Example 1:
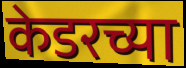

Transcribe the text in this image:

केडरच्या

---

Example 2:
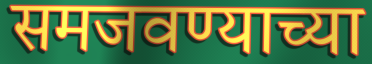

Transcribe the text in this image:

समजवण्याच्या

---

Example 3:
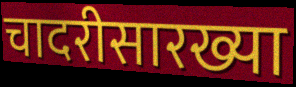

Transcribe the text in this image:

चादरीसारख्या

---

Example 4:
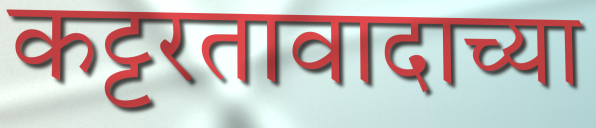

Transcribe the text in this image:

कट्टरतावादाच्या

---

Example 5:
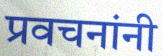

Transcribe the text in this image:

प्रवचनांनी